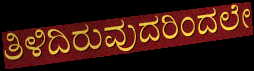
ತಿಳಿದಿರುವುದರಿಂದಲೇ